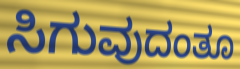
ಸಿಗುವುದಂತೂ